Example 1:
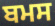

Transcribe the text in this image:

ਬਮਸ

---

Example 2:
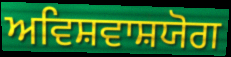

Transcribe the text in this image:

ਅਵਿਸ਼ਵਾਸ਼ਯੋਗ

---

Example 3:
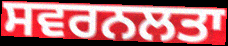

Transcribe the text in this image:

ਸਵਰਨਲਤਾ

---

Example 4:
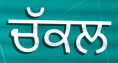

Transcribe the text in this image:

ਚੱਕਲ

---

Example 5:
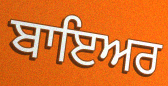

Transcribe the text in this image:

ਬਾਇਅਰ